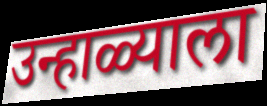
उन्हाळ्याला